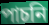
পাচনি